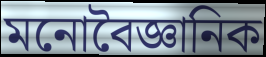
মনোবৈজ্ঞানিক